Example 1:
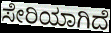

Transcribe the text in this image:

ಸೇರಿಯಾಗಿದೆ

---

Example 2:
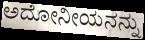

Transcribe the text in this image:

ಅದೋನೀಯನನ್ನು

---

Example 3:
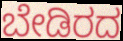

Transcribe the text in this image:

ಬೇಡಿರದ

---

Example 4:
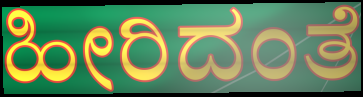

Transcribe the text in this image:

ಹೀರಿದಂತೆ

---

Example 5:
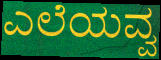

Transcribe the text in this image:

ಎಲೆಯವ್ವ